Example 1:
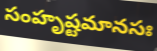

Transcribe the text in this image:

సంహృష్టమానసః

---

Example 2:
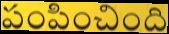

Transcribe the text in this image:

పంపించింది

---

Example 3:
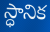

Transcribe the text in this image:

స్ధానిక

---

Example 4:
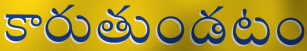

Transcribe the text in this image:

కారుతుండటం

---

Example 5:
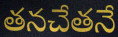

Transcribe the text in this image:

తనచేతనే